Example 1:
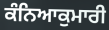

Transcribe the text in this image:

ਕੰਨਿਆਕੁਮਾਰੀ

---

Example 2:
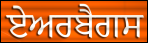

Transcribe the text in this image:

ਏਅਰਬੈਗਸ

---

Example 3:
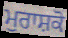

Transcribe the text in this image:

ਮੁਰਾਸ਼ਕੋ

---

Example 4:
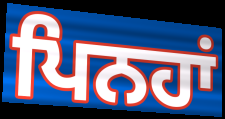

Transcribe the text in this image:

ਪਿਨਹਾਂ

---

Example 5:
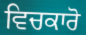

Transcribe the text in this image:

ਵਿਚਕਾਰੋ